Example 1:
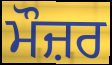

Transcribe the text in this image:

ਮੌਜ਼ਰ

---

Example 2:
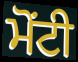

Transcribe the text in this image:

ਮੋਂਟੀ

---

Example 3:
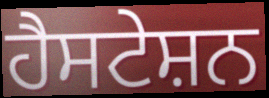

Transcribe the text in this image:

ਹੈਸਟੇਸ਼ਨ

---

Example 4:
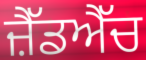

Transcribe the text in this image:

ਜ਼ੈੱਡਐੱਚ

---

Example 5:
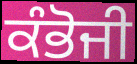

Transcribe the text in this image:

ਕੰਭੋਜੀ